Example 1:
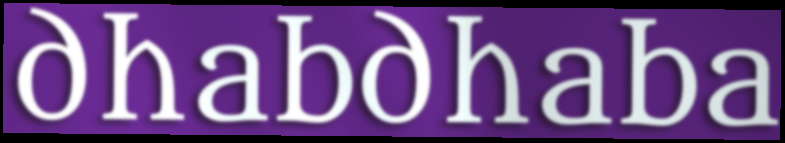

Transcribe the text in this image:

dhabdhaba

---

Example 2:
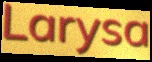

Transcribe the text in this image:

Larysa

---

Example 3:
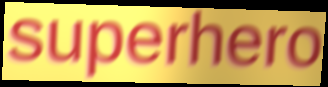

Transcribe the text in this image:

superhero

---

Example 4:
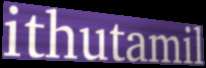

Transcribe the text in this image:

ithutamil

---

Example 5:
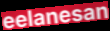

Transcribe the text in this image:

eelanesan